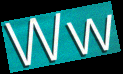
Ww